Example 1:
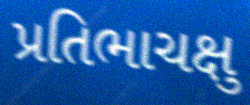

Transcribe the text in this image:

પ્રતિભાચક્ષુ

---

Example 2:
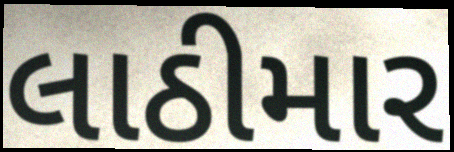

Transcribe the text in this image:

લાઠીમાર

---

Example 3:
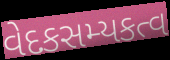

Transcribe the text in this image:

વેદકસમ્યકત્વ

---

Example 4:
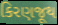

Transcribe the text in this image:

કિરણજૂથ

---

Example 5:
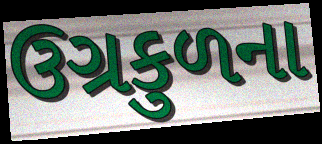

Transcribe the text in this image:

ઉગ્રકુળના